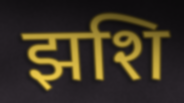
झशि